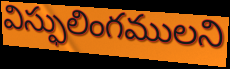
విస్ఫులింగములని